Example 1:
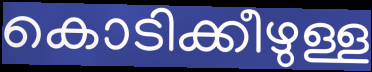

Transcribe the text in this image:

കൊടിക്കീഴുള്ള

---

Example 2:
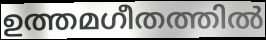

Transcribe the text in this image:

ഉത്തമഗീതത്തിൽ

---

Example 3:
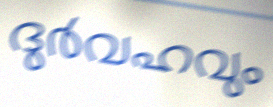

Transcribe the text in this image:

ദുർവഹവും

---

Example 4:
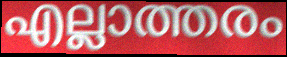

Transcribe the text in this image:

എല്ലാത്തരം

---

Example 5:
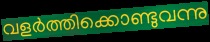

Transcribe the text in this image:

വളർത്തിക്കൊണ്ടുവന്നു